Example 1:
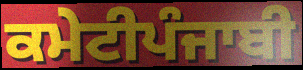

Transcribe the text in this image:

ਕਮੇਟੀਪੰਜਾਬੀ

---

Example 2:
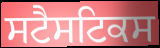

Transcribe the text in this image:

ਸਟੈਸਟਿਕਸ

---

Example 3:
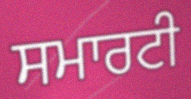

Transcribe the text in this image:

ਸਮਾਰਟੀ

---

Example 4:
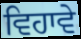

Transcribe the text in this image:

ਵਿਹਾਵੇ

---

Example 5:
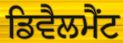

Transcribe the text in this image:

ਡਿਵੈਲਮੈਂਟ